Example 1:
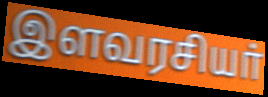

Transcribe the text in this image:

இளவரசியர்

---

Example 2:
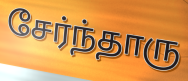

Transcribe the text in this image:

சேர்ந்தாரு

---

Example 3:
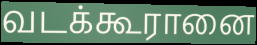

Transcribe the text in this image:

வடக்கூரானை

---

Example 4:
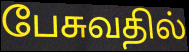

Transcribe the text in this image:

பேசுவதில்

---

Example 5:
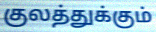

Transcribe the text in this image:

குலத்துக்கும்